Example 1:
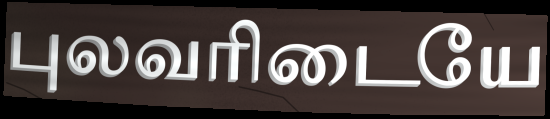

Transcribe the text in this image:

புலவரிடையே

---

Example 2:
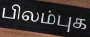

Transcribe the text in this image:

பிலம்புக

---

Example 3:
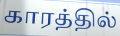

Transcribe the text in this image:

காரத்தில்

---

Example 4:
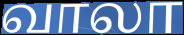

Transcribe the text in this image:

வாலா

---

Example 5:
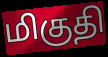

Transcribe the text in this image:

மிகுதி